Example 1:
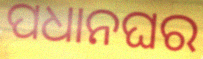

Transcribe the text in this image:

ପଧାନଘର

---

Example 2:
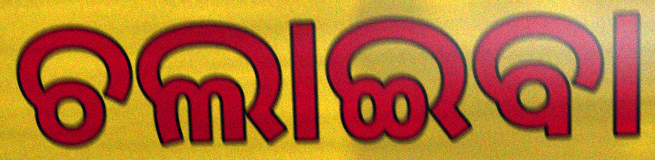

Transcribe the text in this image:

ଚଲାଇବା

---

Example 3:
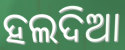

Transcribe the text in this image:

ହଲଦିଆ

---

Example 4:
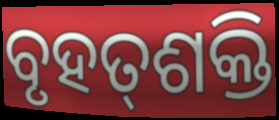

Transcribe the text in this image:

ବୃହତ୍‌ଶକ୍ତି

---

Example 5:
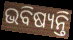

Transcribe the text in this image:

ଭବିଷ୍ୟନ୍ତି